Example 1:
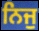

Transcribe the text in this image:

ਨਿਜੁ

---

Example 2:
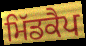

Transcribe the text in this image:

ਮਿੱਡਕੈਪ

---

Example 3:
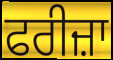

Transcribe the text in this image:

ਫਰੀਜ਼ਾ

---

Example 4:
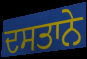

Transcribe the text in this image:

ਦਸਤਾਨੇ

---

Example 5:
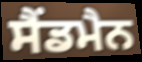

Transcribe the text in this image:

ਸੈਂਡਮੈਨ